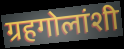
ग्रहगोलांशी